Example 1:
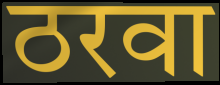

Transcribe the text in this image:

ठरवा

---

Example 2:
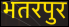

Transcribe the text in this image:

भतरपुर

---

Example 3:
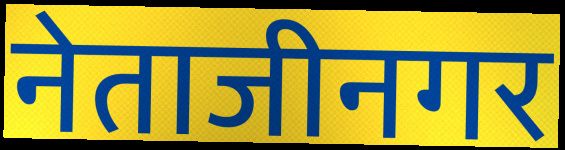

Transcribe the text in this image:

नेताजीनगर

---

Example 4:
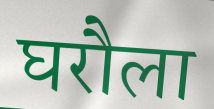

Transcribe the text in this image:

घरौला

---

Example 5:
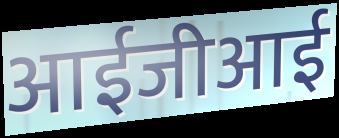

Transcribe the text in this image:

आईजीआई